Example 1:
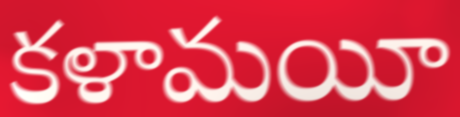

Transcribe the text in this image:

కళామయీ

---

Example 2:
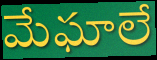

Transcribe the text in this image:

మేఘాలే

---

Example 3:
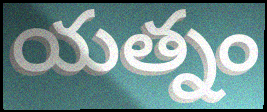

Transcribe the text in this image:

యత్నం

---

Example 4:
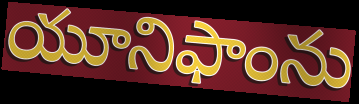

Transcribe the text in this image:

యూనిఫాంను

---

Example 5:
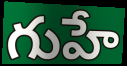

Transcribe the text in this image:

గుహే